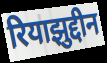
रियाझुद्दीन